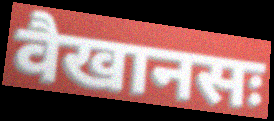
वैखानसः